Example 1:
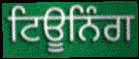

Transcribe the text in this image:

ਟਿਊਨਿੰਗ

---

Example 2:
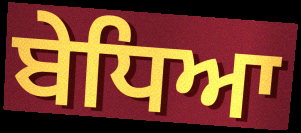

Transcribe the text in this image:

ਬੇਧਿਆ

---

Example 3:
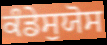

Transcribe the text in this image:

ਕੰਡੇਸੁਯੋਸ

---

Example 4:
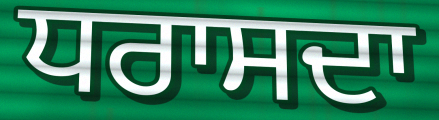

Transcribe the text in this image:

ਧਰਾਸਦਾ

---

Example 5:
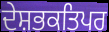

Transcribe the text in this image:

ਦੇਸ਼ਭਕਤਿਪਰ